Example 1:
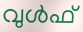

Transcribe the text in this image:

വുൾഫ്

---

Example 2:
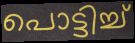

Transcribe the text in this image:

പൊട്ടിച്ച്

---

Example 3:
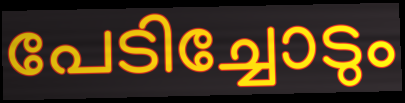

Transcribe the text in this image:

പേടിച്ചോടും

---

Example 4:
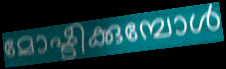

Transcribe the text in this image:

മോഷ്ടിക്കുമ്പോൾ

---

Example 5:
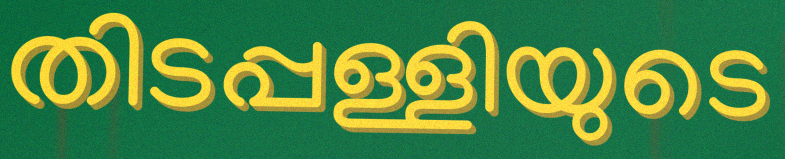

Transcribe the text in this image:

തിടപ്പള്ളിയുടെ